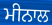
ਮੀਨਾਲ